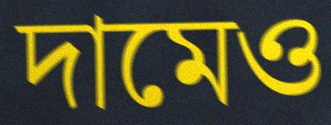
দামেও